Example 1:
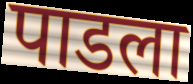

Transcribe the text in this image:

पाडला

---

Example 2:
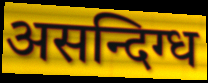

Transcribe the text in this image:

असन्दिग्ध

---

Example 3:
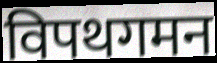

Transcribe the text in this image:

विपथगमन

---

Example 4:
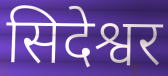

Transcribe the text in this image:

सिदेश्वर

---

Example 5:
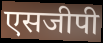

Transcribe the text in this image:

एसजीपी